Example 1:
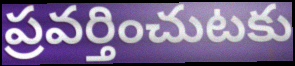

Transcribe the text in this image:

ప్రవర్తించుటకు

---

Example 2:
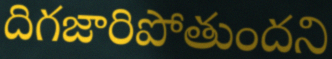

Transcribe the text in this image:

దిగజారిపోతుందని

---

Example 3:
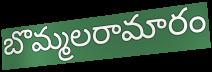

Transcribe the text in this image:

బొమ్మలరామారం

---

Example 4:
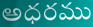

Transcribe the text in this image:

అధరము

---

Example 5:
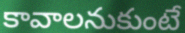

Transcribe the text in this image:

కావాలనుకుంటే